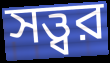
সত্ত্বর